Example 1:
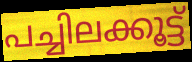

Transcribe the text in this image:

പച്ചിലക്കൂട്ട്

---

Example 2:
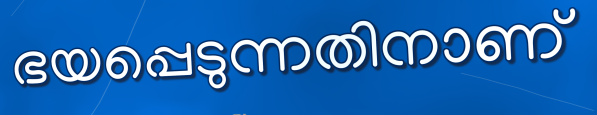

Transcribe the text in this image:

ഭയപ്പെടുന്നതിനാണ്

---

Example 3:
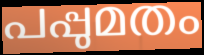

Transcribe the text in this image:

പപ്പുമതം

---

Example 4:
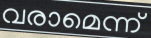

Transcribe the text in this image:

വരാമെന്ന്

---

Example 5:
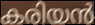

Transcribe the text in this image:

കരിയൻ